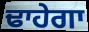
ਢਾਹੇਗਾ